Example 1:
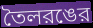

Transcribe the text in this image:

তৈলরঙের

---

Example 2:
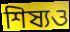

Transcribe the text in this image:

শিষ্যও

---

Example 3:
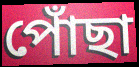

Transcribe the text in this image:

পোঁছা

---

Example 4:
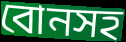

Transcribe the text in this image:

বোনসহ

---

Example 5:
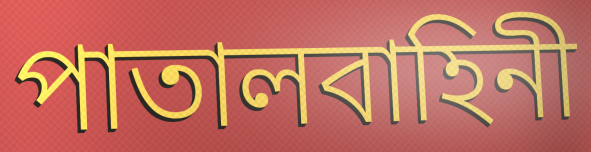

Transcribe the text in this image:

পাতালবাহিনী